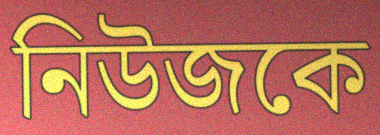
নিউজকে